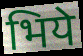
भिये